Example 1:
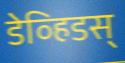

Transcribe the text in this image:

डेव्हिडस्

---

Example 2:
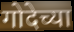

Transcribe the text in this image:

गोदेच्या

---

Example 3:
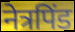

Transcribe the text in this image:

नेत्रपिंड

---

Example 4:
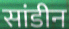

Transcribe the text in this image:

सांडीन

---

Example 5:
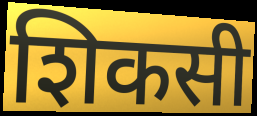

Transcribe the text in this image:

शिकसी